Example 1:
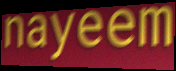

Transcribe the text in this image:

nayeem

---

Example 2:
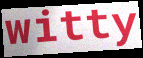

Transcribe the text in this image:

witty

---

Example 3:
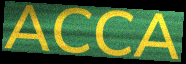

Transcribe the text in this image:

ACCA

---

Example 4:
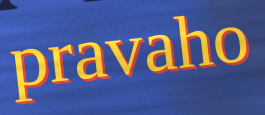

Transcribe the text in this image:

pravaho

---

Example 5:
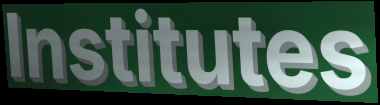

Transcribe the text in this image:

Institutes